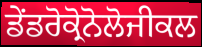
ਡੇਂਡਰੋਕ੍ਰੋਨੋਲੋਜੀਕਲ